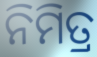
ନିମିତ୍ର